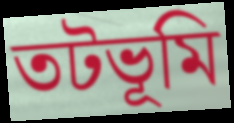
তটভূমি